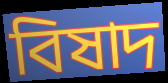
বিষাদ